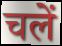
चलें